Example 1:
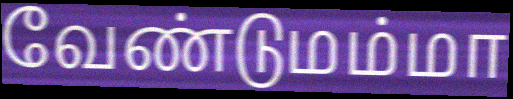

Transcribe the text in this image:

வேண்டுமம்மா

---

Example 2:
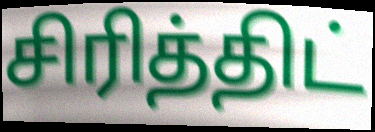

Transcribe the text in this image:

சிரித்திட்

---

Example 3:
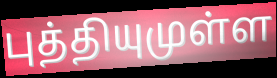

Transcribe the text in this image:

புத்தியுமுள்ள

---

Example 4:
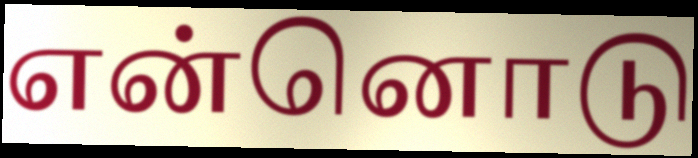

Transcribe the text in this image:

என்னொடு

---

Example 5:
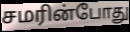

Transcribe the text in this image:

சமரின்போது